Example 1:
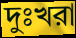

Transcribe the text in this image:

দুঃখরা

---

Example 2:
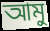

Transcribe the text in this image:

আমু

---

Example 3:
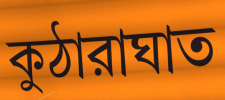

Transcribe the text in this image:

কুঠারাঘাত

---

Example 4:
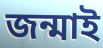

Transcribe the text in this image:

জন্মাই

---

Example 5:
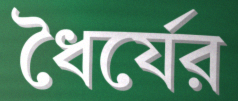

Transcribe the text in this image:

ধৈর্যের